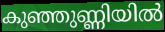
കുഞ്ഞുണ്ണിയിൽ